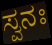
ಸ್ವನಃ